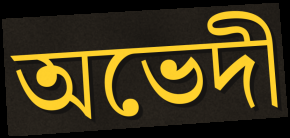
অভেদী